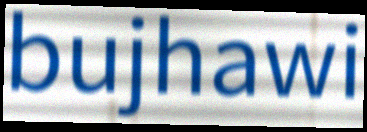
bujhawi